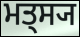
ਮਤ੍ਸ੍ਯ